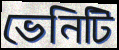
ভেনিটি